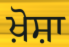
ਖ਼ੋਸ਼ਾ